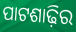
ପାଟଶାଢ଼ିର